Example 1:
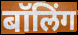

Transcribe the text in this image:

बॉलिंग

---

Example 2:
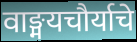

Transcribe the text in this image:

वाङ्मयचौर्याचे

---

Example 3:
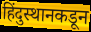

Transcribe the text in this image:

हिंदुस्थानकडून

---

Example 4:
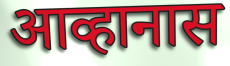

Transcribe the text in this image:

आव्हानास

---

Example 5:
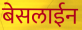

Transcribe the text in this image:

बेसलाईन